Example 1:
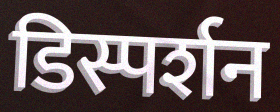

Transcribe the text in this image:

डिस्पर्शन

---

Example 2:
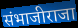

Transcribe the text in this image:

संभाजीराजा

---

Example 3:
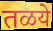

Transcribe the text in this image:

तळये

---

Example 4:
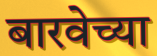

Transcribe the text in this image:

बारवेच्या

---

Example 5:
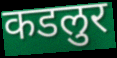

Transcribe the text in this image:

कडलुर